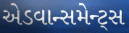
એડવાન્સમેન્ટ્સ